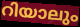
റിയാലും